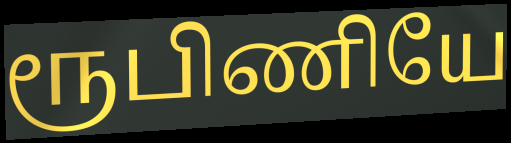
ரூபிணியே